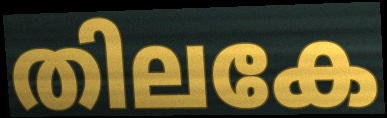
തിലകേ